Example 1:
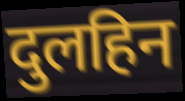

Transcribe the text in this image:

दुलहिन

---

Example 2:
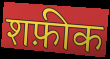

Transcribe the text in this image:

शफ़ीक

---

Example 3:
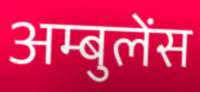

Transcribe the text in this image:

अम्बुलेंस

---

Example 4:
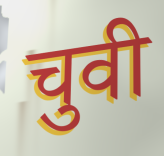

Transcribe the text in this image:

चुवी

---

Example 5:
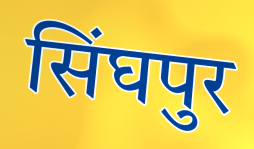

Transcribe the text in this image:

सिंघपुर